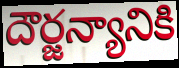
దౌర్జన్యానికి